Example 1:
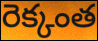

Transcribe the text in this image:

రెక్కంత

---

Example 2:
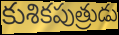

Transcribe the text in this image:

కుశికపుత్రుడు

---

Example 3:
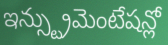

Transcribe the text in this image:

ఇన్స్ట్రుమెంటేషన్లో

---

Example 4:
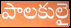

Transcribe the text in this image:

పాలకులై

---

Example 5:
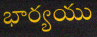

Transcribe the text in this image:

భార్యయు